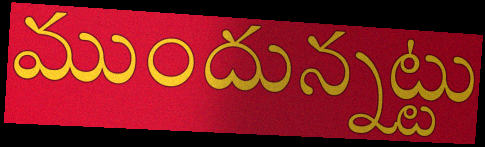
ముందున్నట్టు